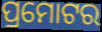
ପ୍ରମୋଟର